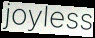
joyless